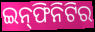
ଇନ୍‌ଫିନିଟିର